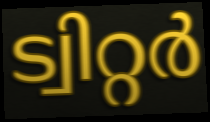
ട്വിറ്റർ